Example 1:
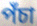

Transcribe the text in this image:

পঁচা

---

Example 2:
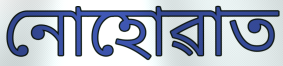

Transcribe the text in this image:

নোহোৱাত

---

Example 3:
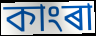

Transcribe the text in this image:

কাংৰা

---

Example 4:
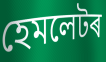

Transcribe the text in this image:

হেমলেটৰ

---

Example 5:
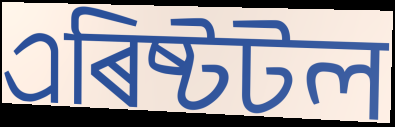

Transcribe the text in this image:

এৰিষ্টটল